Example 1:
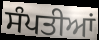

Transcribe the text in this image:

ਸੰਪਤੀਆਂ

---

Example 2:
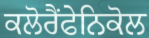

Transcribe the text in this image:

ਕਲੋਰੈਂਫੇਨਿਕੋਲ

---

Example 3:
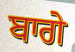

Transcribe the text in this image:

ਬਾਗੇ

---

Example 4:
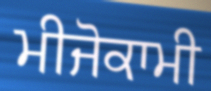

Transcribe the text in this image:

ਮੀਜੋਕਾਮੀ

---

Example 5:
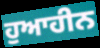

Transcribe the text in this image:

ਹੁਆਹੀਨ